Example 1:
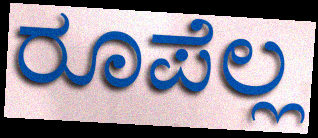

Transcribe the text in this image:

ರೂಪೆಲ್ಲ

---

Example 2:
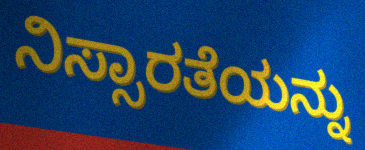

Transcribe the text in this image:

ನಿಸ್ಸಾರತೆಯನ್ನು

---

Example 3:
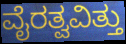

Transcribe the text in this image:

ವೈರತ್ವವಿತ್ತು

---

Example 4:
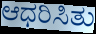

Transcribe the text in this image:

ಆಧರಿಸಿತು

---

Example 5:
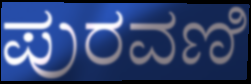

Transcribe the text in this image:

ಪುರವಣಿ